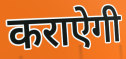
कराऐगी